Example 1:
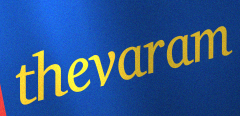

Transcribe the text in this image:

thevaram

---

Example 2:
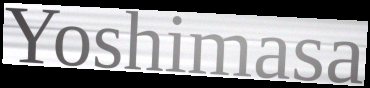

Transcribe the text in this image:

Yoshimasa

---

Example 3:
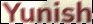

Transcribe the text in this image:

Yunish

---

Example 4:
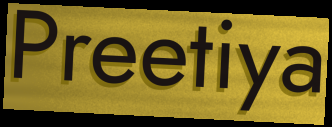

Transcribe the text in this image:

Preetiya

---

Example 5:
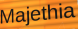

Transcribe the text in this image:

Majethia